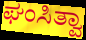
ಘಂಸಿತ್ವಾ